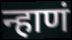
न्हाणं